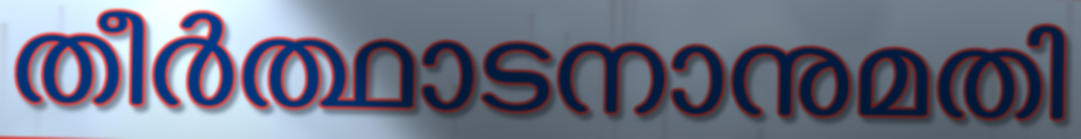
തീർത്ഥാടനാനുമതി